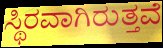
ಸ್ಥಿರವಾಗಿರುತ್ತವೆ